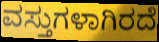
ವಸ್ತುಗಳಾಗಿರದೆ